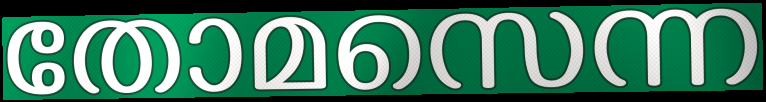
തോമസെന്ന